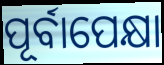
ପୂର୍ବାପେକ୍ଷା